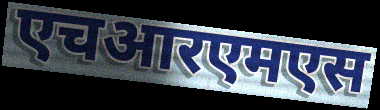
एचआरएमएस